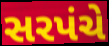
સરપંચે